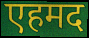
एहमद